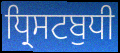
ਧ੍ਰਿਸਟਬੁਧੀ